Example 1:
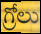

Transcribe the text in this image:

గ్రోలు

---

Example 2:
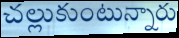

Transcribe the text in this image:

చల్లుకుంటున్నారు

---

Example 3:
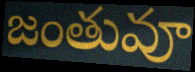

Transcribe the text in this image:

జంతువూ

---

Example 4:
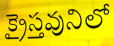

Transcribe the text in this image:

క్రైస్తవునిలో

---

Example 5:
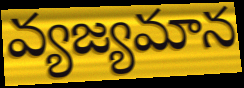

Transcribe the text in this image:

వ్యజ్యమాన